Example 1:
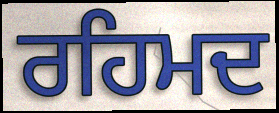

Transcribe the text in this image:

ਰਹਿਮਦ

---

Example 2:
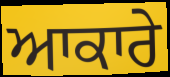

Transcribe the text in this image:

ਆਕਾਰੇ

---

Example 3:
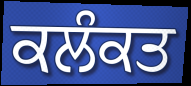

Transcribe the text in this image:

ਕਲੰਕਤ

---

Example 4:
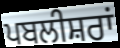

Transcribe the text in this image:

ਪਬਲੀਸ਼ਰਾਂ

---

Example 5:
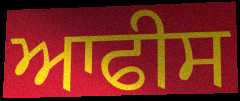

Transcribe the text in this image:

ਆਫੀਸ